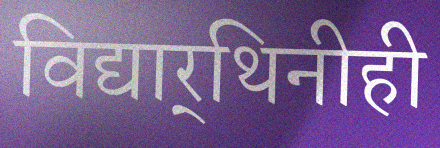
विद्यार्थिनीही